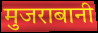
मुजराबानी